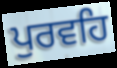
ਪੁਰਵਹਿ